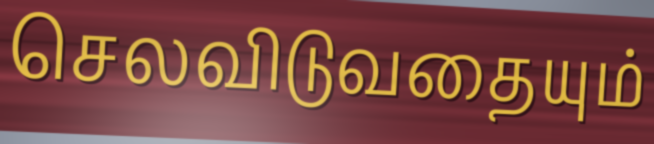
செலவிடுவதையும்